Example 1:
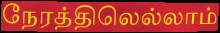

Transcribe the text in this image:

நேரத்திலெல்லாம்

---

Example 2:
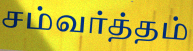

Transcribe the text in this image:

சம்வர்த்தம்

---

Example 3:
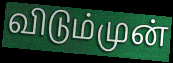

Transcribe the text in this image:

விடும்முன்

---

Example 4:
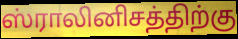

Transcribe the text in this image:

ஸ்ராலினிசத்திற்கு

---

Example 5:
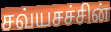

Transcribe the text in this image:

சவ்யசச்சின்